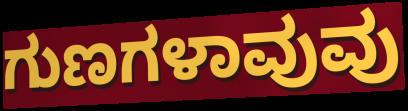
ಗುಣಗಳಾವುವು